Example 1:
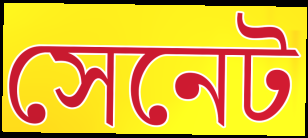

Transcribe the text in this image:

সেনেট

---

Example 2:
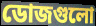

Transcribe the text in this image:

ডোজগুলো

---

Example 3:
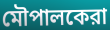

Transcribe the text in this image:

মৌপালকেরা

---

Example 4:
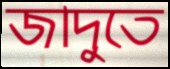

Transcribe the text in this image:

জাদুতে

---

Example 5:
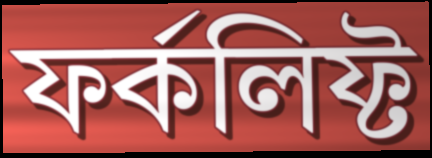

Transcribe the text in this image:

ফর্কলিফ্ট